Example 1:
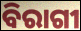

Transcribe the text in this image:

ବିରାଗୀ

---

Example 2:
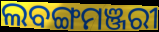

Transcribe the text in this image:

ଲବଙ୍ଗମଞ୍ଜରୀ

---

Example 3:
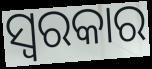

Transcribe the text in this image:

ସ୍ୱରକାର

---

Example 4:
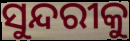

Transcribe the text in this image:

ସୁନ୍ଦରୀକୁ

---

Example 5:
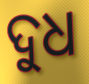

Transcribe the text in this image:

ଦୁଧ